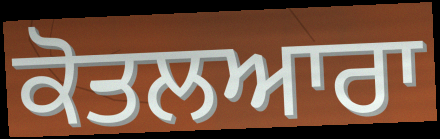
ਕੋਤਲਆਰਾ